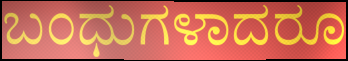
ಬಂಧುಗಳಾದರೂ